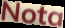
Nota